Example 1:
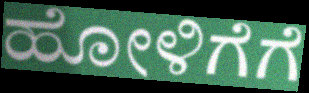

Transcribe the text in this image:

ಹೋಳಿಗೆಗೆ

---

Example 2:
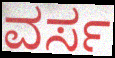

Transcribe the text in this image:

ವರ್ಸ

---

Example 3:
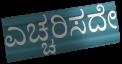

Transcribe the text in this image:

ಎಚ್ಚರಿಸದೇ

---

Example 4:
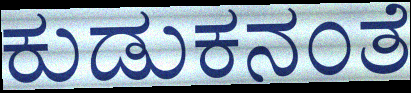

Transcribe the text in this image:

ಕುಡುಕನಂತೆ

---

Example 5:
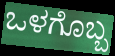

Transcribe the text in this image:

ಒಳಗೊಬ್ಬ